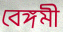
বেঙ্গমী